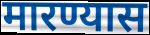
मारण्यास